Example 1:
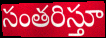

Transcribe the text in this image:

సంతరిస్తూ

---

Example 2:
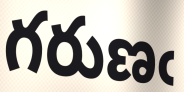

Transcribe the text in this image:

గరుణఁ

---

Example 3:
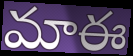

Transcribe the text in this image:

మాఈ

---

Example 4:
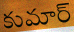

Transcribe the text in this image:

కుమార్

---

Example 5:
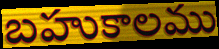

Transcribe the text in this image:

బహుకాలము